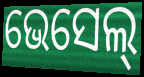
ଭେସେଲ୍